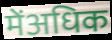
मेंअधिक